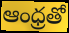
ఆంధ్రతో